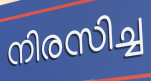
നിരസിച്ച